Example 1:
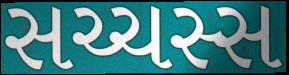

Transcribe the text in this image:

સચ્ચસ્સ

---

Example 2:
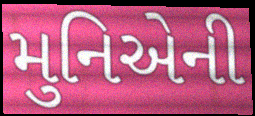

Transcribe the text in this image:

મુનિએની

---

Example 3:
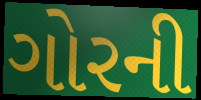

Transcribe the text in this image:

ગોરની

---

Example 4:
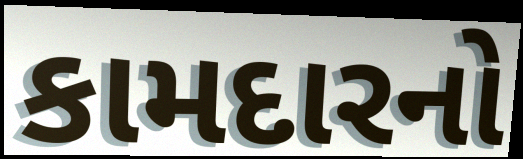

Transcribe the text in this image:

કામદારનો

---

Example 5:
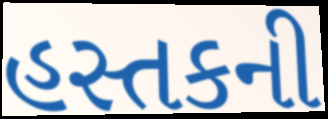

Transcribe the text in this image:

હસ્તકની